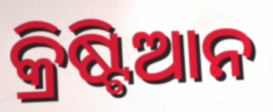
କ୍ରିଷ୍ଟିଆନ